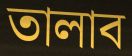
তালাব